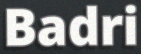
Badri